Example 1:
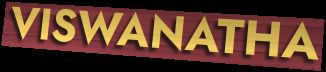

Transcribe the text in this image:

VISWANATHA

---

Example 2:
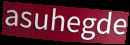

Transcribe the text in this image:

asuhegde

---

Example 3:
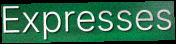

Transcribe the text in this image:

Expresses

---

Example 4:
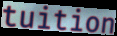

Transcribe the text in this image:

tuition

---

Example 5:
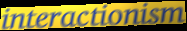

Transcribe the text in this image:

interactionism